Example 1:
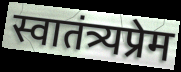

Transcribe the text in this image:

स्वातंत्र्यप्रेम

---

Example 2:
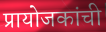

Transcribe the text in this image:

प्रायोजकांची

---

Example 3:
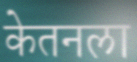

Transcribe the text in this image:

केतनला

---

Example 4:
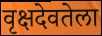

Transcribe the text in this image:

वृक्षदेवतेला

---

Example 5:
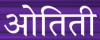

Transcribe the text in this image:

ओतिती